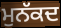
ਮੁਨੱਕਦ